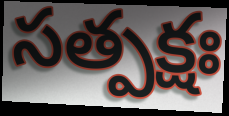
సత్పక్షః